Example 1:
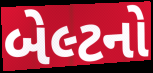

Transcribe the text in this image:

બેલ્ટનો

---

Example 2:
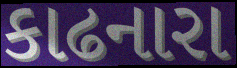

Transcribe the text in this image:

કાઢનારા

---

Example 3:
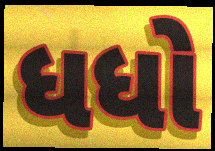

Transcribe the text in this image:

ધધો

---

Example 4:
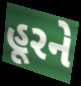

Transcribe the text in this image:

હૂરને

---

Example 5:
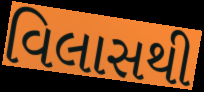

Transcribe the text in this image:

વિલાસથી